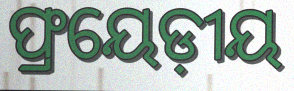
ଫ୍ରୟେଡ଼ୀୟ